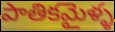
పాతికమైళ్ళ